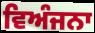
ਵਿਅੰਜਨਾ